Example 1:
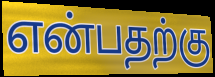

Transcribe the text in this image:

என்பதற்கு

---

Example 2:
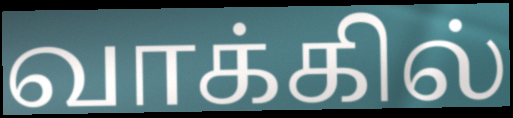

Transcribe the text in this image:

வாக்கில்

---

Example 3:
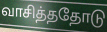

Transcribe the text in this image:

வாசித்ததோடு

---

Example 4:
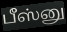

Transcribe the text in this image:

பீஸ்னு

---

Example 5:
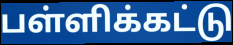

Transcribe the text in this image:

பள்ளிக்கட்டு